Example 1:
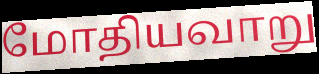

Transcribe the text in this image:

மோதியவாறு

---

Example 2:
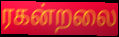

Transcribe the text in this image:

ரகன்றலை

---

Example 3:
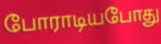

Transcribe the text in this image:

போராடியபோது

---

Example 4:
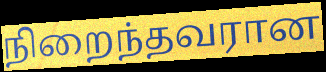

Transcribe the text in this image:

நிறைந்தவரான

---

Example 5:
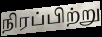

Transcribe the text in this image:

நிரப்பிற்று